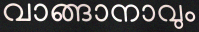
വാങ്ങാനാവും